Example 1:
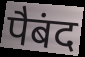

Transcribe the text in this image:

पैबंद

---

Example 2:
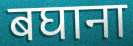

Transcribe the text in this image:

बघाना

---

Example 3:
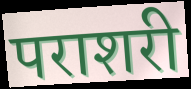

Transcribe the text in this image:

पराशरी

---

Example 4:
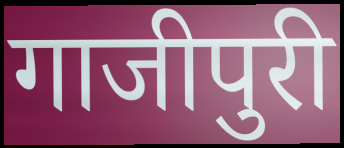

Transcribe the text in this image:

गाजीपुरी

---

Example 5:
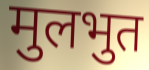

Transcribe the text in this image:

मुलभुत